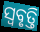
ସ୍ୱବୃତ୍ତି